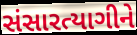
સંસારત્યાગીને